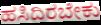
ಹಸಿದಿರಬೇಕು